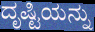
ದೃಷ್ಟಿಯನ್ನು